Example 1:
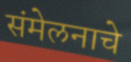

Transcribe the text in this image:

संमेलनाचे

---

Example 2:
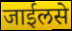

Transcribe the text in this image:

जाईलसे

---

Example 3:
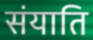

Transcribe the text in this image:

संयाति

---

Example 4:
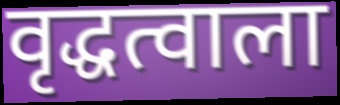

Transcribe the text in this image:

वृद्धत्वाला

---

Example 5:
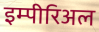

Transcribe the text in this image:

इम्पीरिअल